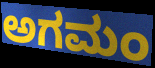
ಅಗಮಂ